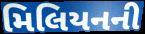
મિલિયનની